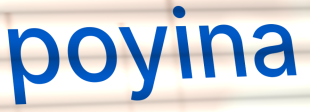
poyina